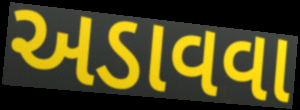
અડાવવા